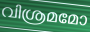
വിശ്രമമോ